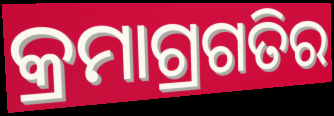
କ୍ରମାଗ୍ରଗତିର